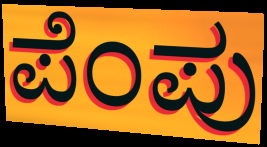
ಪೆಂಪು